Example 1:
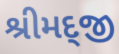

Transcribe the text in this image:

શ્રીમદ્જી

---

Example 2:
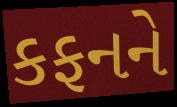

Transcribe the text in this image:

કફનને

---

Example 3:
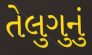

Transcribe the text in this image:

તેલુગુનું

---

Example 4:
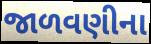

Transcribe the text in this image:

જાળવણીના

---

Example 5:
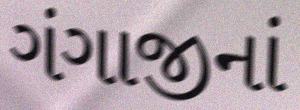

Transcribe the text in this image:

ગંગાજીનાં